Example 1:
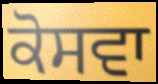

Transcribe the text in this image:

ਕੋਸਵਾ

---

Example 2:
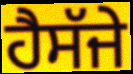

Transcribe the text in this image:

ਹੈਸੱਜੇ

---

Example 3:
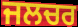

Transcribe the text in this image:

ਜਲਚਰ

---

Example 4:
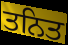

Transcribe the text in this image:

ਤਨਿਤ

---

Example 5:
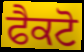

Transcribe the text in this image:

ਫੈਕਟੋ